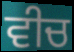
ਵੀਚ